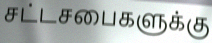
சட்டசபைகளுக்கு